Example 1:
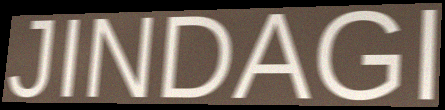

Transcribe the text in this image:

JINDAGI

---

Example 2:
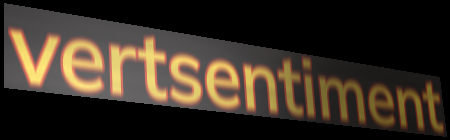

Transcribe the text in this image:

vertsentiment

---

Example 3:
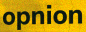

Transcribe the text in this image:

opnion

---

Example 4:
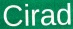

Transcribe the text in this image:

Cirad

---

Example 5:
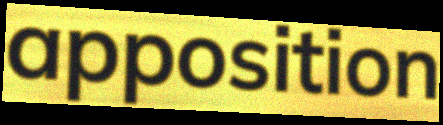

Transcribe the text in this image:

apposition